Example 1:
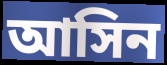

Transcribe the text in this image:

আসিন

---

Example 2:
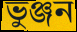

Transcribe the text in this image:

ভুঞ্জন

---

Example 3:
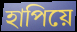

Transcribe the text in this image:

হাপিয়ে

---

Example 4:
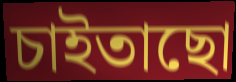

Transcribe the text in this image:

চাইতাছো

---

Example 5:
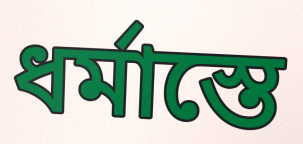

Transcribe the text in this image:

ধর্মাস্তে